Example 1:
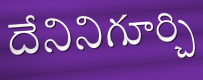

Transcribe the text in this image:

దేనినిగూర్చి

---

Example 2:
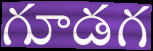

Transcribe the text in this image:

గూడగ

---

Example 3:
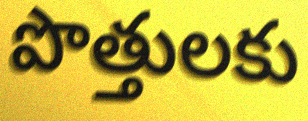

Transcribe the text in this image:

పొత్తులకు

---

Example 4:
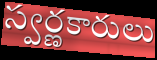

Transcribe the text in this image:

స్వర్ణకారులు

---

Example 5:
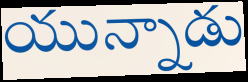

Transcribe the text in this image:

యున్నాడు